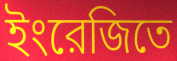
ইংরেজিতে